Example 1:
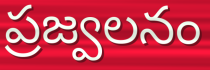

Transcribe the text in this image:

ప్రజ్వలనం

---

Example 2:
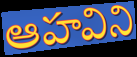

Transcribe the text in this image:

ఆహవిని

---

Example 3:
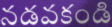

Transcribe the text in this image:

నడవకండి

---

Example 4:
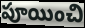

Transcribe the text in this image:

పూయించి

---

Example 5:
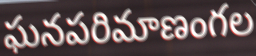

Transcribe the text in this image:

ఘనపరిమాణంగల